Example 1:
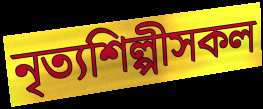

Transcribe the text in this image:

নৃত্যশিল্পীসকল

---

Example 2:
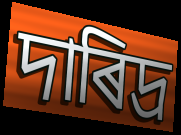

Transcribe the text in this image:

দাৰিদ্ৰ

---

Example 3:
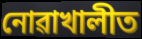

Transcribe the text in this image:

নোৱাখালীত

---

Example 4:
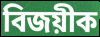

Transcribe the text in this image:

বিজয়ীক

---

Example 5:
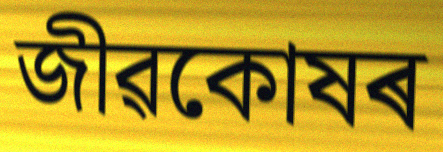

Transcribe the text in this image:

জীৱকোষৰ